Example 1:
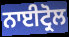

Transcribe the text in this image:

ਨਾਈਟ੍ਰੋਲ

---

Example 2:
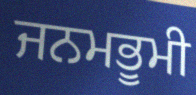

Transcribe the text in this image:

ਜਨਮਭੂਮੀ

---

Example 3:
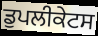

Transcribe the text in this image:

ਡੁਪਲੀਕੇਟਸ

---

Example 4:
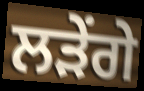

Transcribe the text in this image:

ਲੜੇਂਗੇ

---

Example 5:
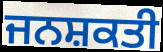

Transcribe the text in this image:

ਜਨਸ਼ਕਤੀ